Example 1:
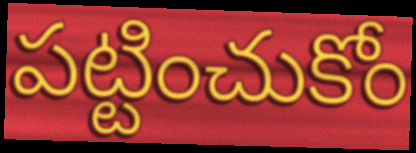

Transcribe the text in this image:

పట్టించుకోం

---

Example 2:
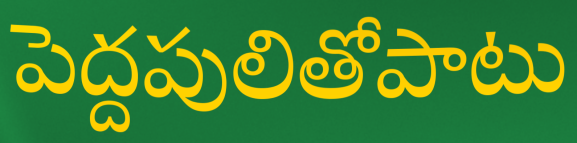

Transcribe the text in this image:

పెద్దపులితోపాటు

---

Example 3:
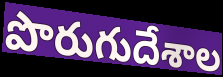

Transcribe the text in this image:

పొరుగుదేశాల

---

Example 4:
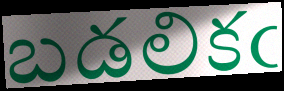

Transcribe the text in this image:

బడలికఁ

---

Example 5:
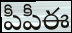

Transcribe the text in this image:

పీపీఈ